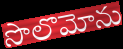
సొలొమోను